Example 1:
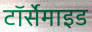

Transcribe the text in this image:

टॉर्सेमाइड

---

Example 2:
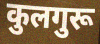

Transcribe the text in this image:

कुलगुरू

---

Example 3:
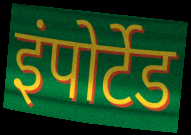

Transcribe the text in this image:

इंपोर्टेड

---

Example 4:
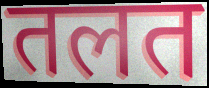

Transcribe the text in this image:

तलत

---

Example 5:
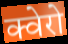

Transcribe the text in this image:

क्वेरो